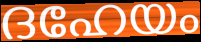
ദഹേയം